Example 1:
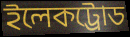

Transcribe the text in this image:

ইলেকট্রোড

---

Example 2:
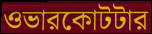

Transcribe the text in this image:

ওভারকোটটার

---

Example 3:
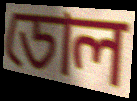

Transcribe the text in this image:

ডোল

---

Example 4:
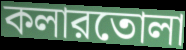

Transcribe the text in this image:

কলারতোলা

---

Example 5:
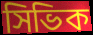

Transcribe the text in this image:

সিভিক